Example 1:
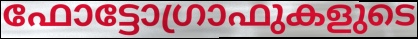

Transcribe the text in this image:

ഫോട്ടോഗ്രാഫുകളുടെ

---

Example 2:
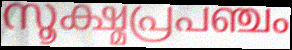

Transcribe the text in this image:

സൂക്ഷ്മപ്രപഞ്ചം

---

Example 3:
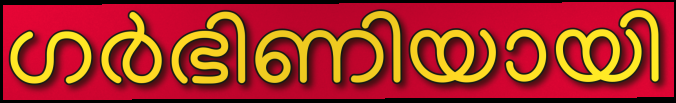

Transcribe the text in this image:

ഗർഭിണിയായി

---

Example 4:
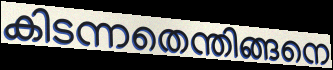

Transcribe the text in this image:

കിടന്നതെന്തിങ്ങനെ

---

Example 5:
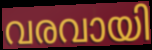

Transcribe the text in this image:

വരവായി